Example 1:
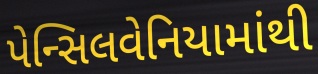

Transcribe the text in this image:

પેન્સિલવેનિયામાંથી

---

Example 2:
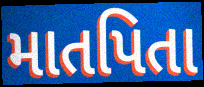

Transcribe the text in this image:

માતપિતા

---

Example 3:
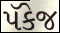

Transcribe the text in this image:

પૅકેજ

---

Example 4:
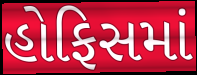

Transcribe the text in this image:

હોફિસમાં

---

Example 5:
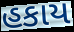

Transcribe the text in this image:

હકાય